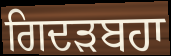
ਗਿਦੜਬਹਾ